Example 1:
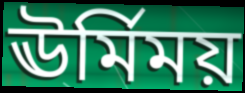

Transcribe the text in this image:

ঊর্মিময়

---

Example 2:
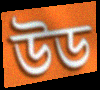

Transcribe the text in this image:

উড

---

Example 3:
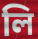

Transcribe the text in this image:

লি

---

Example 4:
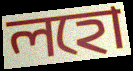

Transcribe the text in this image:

লহো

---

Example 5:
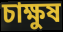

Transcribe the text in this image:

চাক্ষুষ